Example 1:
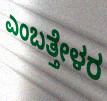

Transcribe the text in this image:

ಎಂಬತ್ತೇಳರ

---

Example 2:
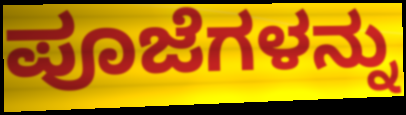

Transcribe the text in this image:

ಪೂಜೆಗಳನ್ನು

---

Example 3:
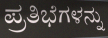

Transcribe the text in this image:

ಪ್ರತಿಭೆಗಳನ್ನು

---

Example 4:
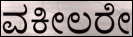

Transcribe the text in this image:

ವಕೀಲರೇ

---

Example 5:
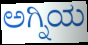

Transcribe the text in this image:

ಅಗ್ನಿಯ